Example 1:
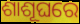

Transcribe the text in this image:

ଶାଶୂଘରେ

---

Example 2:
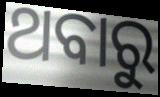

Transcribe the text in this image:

ଥବାରୁ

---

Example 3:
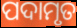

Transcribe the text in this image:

ପଦାମୃତ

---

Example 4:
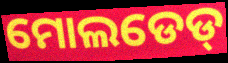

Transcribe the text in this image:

ମୋଲଡେଡ୍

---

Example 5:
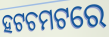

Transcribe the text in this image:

ହଟଚମଟରେ